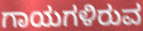
ಗಾಯಗಳಿರುವ